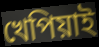
খেপিয়াই